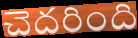
చెదరింది